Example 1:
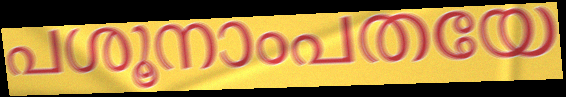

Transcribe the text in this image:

പശൂനാംപതയേ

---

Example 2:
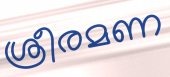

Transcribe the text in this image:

ശ്രീരമണ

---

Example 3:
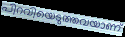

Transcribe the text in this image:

പിറവിയെടുത്തവയാണ്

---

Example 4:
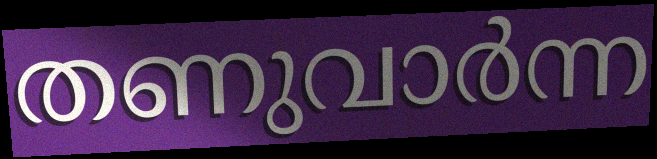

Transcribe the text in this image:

തണുവാർന്ന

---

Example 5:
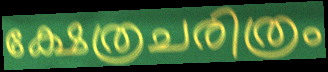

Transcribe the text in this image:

ക്ഷേത്രചരിത്രം